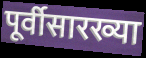
पूर्वीसारख्या